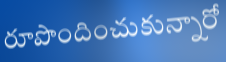
రూపొందించుకున్నారో